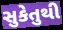
સુકેતુથી